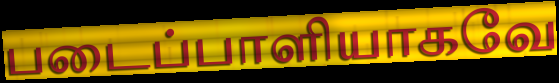
படைப்பாளியாகவே